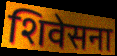
शिवेसना